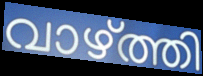
വാഴ്ത്തി